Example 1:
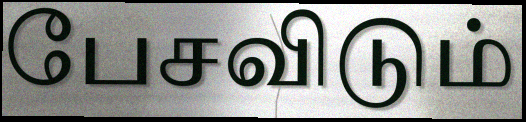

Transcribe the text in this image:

பேசவிடும்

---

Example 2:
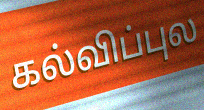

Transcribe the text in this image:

கல்விப்புல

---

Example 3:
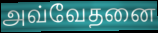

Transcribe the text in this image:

அவ்வேதனை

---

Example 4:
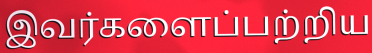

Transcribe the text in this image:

இவர்களைப்பற்றிய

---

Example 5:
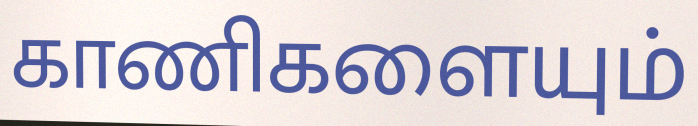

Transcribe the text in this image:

காணிகளையும்